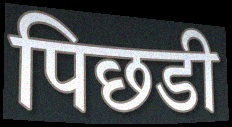
पिछडी